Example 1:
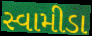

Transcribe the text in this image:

સ્વામીડા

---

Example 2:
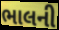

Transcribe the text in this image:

ભાલની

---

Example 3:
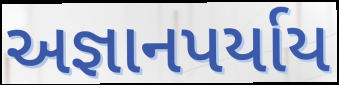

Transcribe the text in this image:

અજ્ઞાનપર્યાય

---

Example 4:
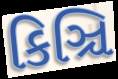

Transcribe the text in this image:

કિઞ્ચિ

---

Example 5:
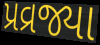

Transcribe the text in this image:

પ્રવ્રજ્યા